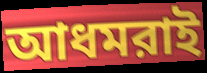
আধমরাই